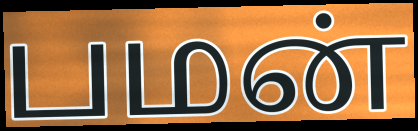
பமன்